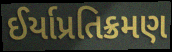
ઈર્યાપ્રતિક્રમણ